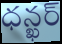
ధన్ఖర్